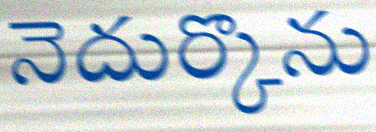
నెదుర్కొను